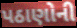
પઠાણોની